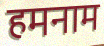
हमनाम